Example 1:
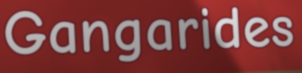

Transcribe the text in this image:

Gangarides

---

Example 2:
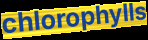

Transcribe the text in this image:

chlorophylls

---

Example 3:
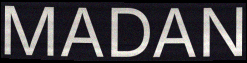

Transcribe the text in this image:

MADAN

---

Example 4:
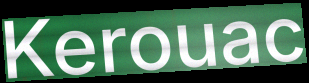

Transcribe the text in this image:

Kerouac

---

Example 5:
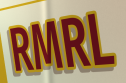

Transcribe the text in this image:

RMRL